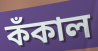
কঁকাল